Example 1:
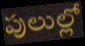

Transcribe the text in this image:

పులుల్లో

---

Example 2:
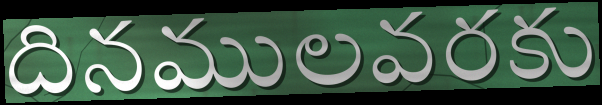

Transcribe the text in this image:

దినములవరకు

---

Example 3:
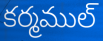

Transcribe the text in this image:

కర్మముల్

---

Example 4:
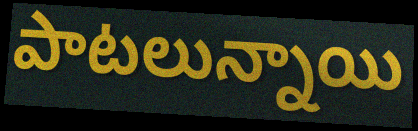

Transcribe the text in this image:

పాటలున్నాయి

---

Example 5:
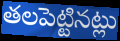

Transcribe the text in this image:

తలపెట్టినట్లు